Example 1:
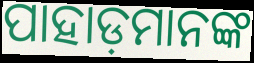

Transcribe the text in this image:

ପାହାଡ଼ମାନଙ୍କ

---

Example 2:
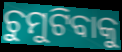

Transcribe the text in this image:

ଚୁମୁଟିବାକୁ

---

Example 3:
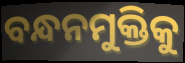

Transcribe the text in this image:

ବନ୍ଧନମୁକ୍ତିକୁ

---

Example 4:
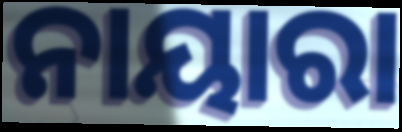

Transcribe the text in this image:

ନାୟାରା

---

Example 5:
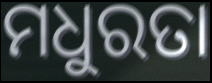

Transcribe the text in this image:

ମଧୁରତା